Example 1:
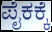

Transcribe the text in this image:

ಪೈಕಕ್ಕೆ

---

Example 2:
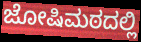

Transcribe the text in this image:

ಜೋಷಿಮಠದಲ್ಲಿ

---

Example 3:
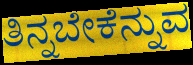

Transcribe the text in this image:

ತಿನ್ನಬೇಕೆನ್ನುವ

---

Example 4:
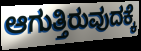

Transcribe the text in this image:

ಆಗುತ್ತಿರುವುದಕ್ಕೆ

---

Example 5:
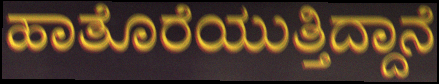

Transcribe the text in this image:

ಹಾತೊರೆಯುತ್ತಿದ್ದಾನೆ